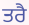
ਤਰੈ